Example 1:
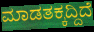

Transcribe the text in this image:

ಮಾಡತಕ್ಕದ್ದಿದೆ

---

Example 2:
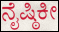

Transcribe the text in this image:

ನೈಷ್ಠಿಕೀ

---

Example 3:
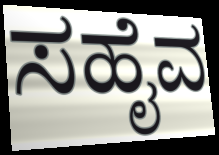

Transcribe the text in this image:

ಸಹೈವ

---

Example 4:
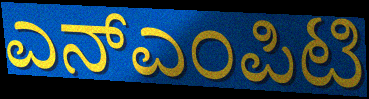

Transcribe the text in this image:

ಎನ್ಎಂಪಿಟಿ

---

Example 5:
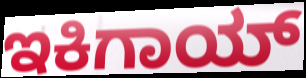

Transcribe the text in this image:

ಇಕಿಗಾಯ್